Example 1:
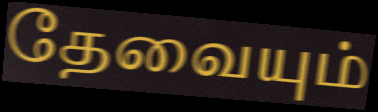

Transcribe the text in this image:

தேவையும்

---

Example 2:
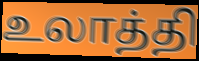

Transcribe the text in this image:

உலாத்தி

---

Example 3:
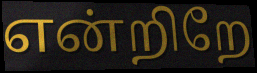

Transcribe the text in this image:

என்றிறே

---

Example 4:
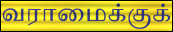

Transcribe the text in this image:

வராமைக்குக்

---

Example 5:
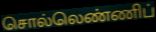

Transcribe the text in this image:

சொல்லெண்ணிப்